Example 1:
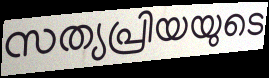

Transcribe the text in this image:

സത്യപ്രിയയുടെ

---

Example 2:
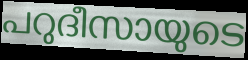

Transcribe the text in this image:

പറുദീസായുടെ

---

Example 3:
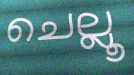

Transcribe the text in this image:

ചെല്ലൂ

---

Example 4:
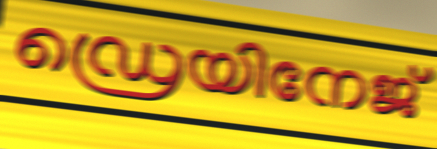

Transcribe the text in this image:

ഡ്രെയിനേജ്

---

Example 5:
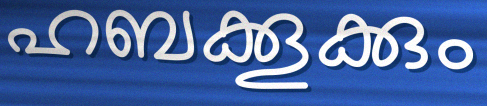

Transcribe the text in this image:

ഹബക്കൂക്കും